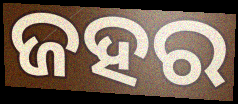
ଜହର